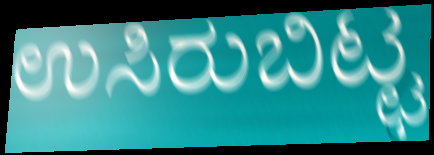
ಉಸಿರುಬಿಟ್ಟ